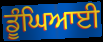
ਡੂੰਘਿਆਈ